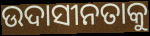
ଉଦାସୀନତାକୁ